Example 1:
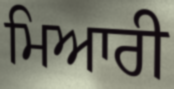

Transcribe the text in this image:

ਮਿਆਰੀ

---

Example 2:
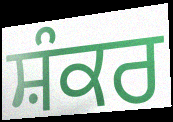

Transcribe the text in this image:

ਸ਼ੰਕਰ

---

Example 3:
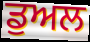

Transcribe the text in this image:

ਡੁਅਲ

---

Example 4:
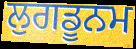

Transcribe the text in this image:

ਲੁਗਡੂਨਮ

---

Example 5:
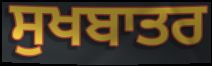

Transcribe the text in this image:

ਸੁਖਬਾਤਰ